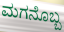
ಮಗನೊಬ್ಬ